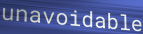
unavoidable